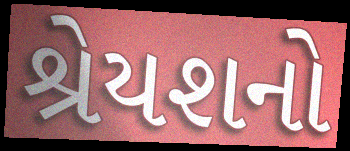
શ્રેયશનો